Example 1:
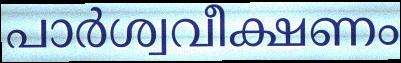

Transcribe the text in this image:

പാർശ്വവീക്ഷണം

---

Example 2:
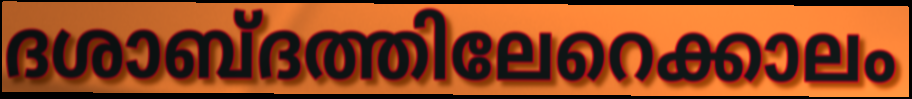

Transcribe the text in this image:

ദശാബ്ദത്തിലേറെക്കാലം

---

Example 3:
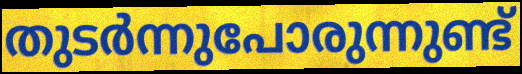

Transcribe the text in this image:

തുടർന്നുപോരുന്നുണ്ട്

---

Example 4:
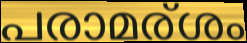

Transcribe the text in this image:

പരാമര്ശം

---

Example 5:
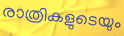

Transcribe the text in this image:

രാത്രികളുടെയും